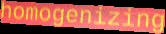
homogenizing